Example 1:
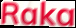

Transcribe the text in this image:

Raka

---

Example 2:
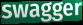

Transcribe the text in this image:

swagger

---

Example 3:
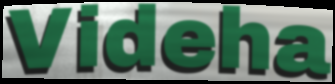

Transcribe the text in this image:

Videha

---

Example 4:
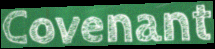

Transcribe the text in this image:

Covenant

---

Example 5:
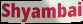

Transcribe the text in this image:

Shyambai